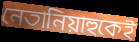
নেতানিয়াহুকেই